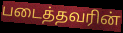
படைத்தவரின்